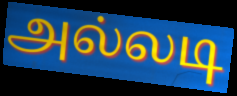
அல்லடி